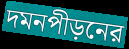
দমনপীড়নের